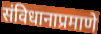
संविधानाप्रमाणे